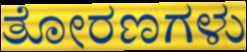
ತೋರಣಗಳು